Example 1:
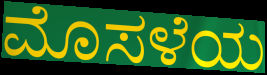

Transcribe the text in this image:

ಮೊಸಳೆಯ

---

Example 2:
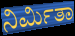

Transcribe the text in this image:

ನಿರ್ಮಿತಾ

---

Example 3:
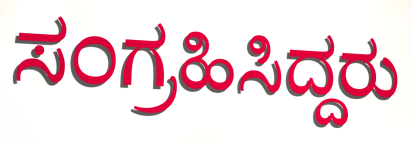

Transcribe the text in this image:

ಸಂಗ್ರಹಿಸಿದ್ದರು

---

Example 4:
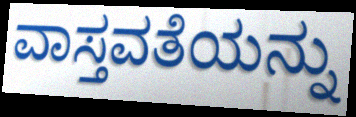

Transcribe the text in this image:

ವಾಸ್ತವತೆಯನ್ನು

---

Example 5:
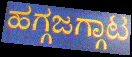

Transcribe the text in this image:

ಹಗ್ಗಜಗ್ಗಾಟ